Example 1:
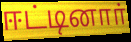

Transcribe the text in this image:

ஈட்டினார்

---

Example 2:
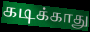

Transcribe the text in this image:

கடிக்காது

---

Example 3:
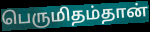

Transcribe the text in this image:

பெருமிதம்தான்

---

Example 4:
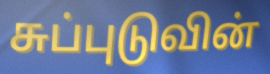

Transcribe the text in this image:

சுப்புடுவின்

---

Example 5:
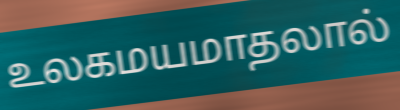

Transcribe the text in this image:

உலகமயமாதலால்